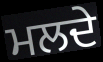
ਮਲਦੇ